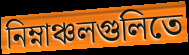
নিম্নাঞ্চলগুলিতে